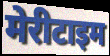
मेरीटाइम